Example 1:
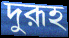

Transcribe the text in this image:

দুরূহ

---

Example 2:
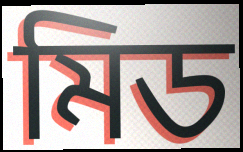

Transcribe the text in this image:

মিড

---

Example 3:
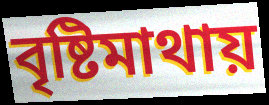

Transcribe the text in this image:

বৃষ্টিমাথায়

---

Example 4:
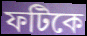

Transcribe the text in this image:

ফটিকে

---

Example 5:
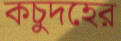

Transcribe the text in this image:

কচুদহের